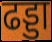
ढड्डा